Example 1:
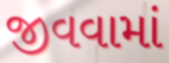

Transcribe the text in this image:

જીવવામાં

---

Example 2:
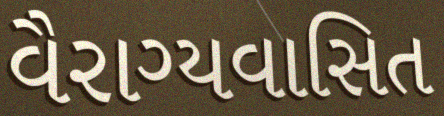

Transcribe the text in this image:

વૈરાગ્યવાસિત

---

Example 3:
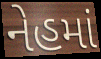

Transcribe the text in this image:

નેહમાં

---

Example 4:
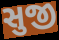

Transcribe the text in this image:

સુજી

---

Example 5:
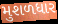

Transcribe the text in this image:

મુશળધાર